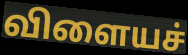
விளையச்